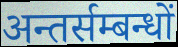
अन्तर्सम्बन्धों